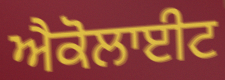
ਐਕੋਲਾਈਟ